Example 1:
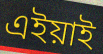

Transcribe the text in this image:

এইয়াই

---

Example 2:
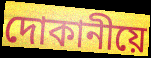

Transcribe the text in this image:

দোকানীয়ে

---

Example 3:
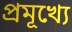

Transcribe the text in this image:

প্ৰমূখ্যে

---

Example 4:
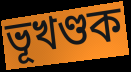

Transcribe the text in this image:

ভূখণ্ডক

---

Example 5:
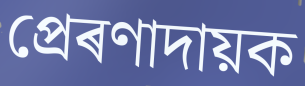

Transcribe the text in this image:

প্ৰেৰণাদায়ক